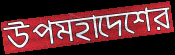
উপমহাদেশের